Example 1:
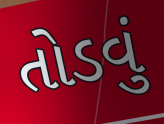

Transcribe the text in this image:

તોડવું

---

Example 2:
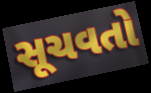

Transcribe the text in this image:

સૂચવતો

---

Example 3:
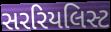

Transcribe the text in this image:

સરરિયલિસ્ટ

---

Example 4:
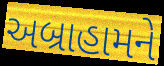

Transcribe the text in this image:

અબ્રાહામને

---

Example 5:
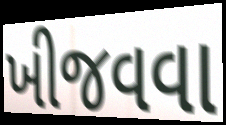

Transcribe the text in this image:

ખીજવવા